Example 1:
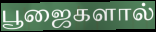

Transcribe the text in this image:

பூஜைகளால்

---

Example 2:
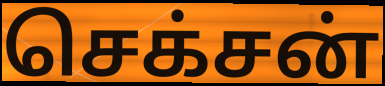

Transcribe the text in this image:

செக்சன்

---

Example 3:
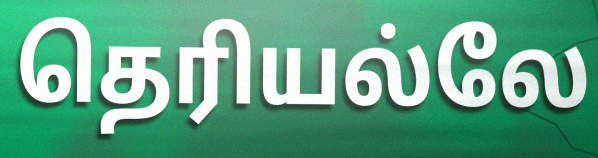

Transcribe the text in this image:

தெரியல்லே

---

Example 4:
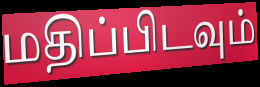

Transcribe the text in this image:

மதிப்பிடவும்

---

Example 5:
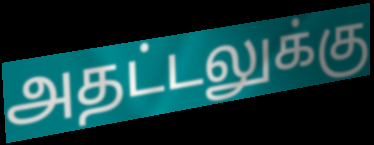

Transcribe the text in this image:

அதட்டலுக்கு